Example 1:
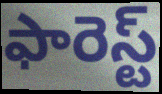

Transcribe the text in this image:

ఫారెస్ట్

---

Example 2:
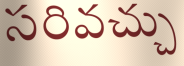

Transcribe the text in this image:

సరివచ్చు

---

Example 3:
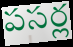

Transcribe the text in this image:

పసర్ల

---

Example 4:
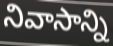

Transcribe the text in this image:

నివాసాన్ని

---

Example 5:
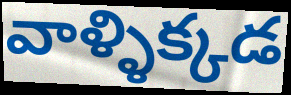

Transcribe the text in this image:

వాళ్ళిక్కడ